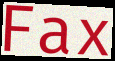
Fax